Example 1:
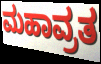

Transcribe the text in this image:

ಮಹಾವ್ರತ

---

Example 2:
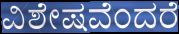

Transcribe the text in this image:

ವಿಶೇಷವೆಂದರೆ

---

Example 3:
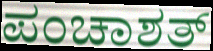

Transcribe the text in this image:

ಪಂಚಾಶತ್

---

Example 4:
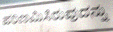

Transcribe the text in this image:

ಪರಿಣಮಿಸಿರುವುದನ್ನು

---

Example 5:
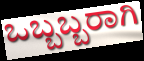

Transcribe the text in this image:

ಒಬ್ಬಬ್ಬರಾಗಿ